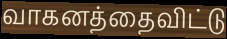
வாகனத்தைவிட்டு